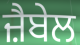
ਜ਼ੈਬੇਲ